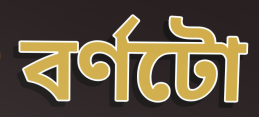
বৰ্ণটো